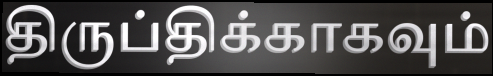
திருப்திக்காகவும்